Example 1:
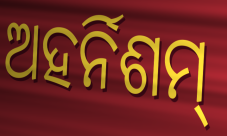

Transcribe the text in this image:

ଅହର୍ନିଶମ୍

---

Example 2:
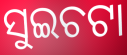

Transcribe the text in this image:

ସୁଇଚଟା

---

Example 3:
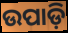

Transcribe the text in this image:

ଉପାଡ଼ି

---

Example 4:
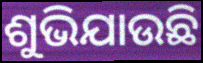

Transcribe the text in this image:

ଶୁଭିଯାଉଛି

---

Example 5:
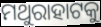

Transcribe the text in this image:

ମଥୁରାହାଟକୁ